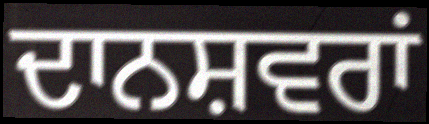
ਦਾਨਸ਼ਵਰਾਂ